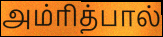
அம்ரித்பால்